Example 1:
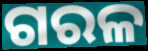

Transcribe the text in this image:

ଗରଳ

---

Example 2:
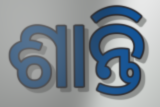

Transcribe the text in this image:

ଶାନ୍ତି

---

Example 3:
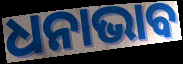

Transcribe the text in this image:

ଧନାଭାବ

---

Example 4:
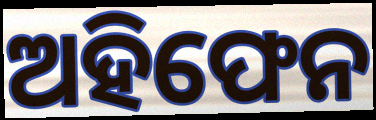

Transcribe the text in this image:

ଅହିଫେନ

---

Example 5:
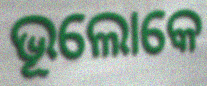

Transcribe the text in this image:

ଭୂଲୋକେ